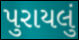
પુરાયલું